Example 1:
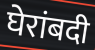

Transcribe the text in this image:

घेरांबदी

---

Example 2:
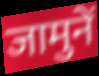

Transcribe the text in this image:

जामुनें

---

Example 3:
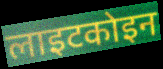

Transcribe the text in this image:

लाइटकोइन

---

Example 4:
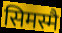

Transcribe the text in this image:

सिमस्मै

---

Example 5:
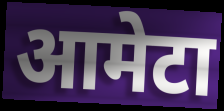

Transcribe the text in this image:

आमेटा